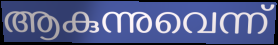
ആകുന്നുവെന്ന്